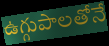
ఉగ్గుపాలతోనే